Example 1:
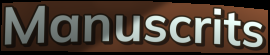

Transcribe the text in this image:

Manuscrits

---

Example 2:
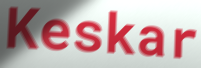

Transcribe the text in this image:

Keskar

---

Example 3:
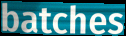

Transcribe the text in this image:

batches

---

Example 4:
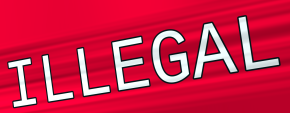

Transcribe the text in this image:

ILLEGAL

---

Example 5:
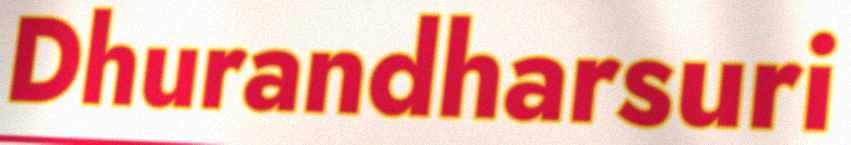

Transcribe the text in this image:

Dhurandharsuri